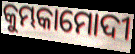
କୁମ୍ଭକାମୋଦୀ